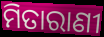
ମିତାରାଣୀ